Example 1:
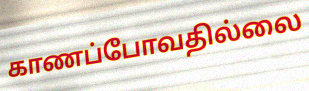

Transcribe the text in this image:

காணப்போவதில்லை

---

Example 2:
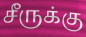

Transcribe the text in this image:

சீருக்கு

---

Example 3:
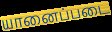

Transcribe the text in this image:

யானைப்படை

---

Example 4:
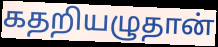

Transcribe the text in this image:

கதறியழுதான்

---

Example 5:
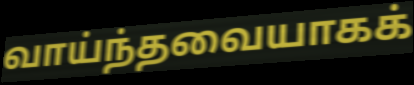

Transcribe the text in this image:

வாய்ந்தவையாகக்